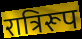
रात्रिरूप